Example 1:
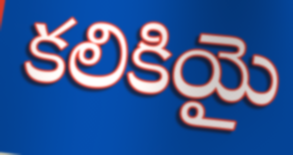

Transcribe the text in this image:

కలికియై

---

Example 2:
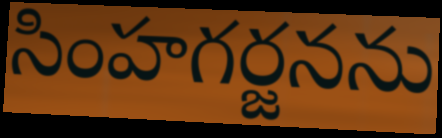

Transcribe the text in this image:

సింహగర్జనను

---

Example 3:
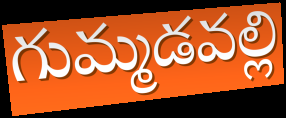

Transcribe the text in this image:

గుమ్మడవల్లి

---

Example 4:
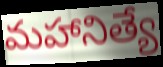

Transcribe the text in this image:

మహానిత్యే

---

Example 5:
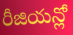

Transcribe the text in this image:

రీజియన్లో